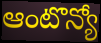
ఆంటొన్యో